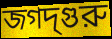
জগদ্‌গুরু